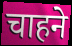
चाहने